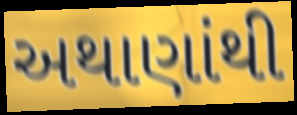
અથાણાંથી